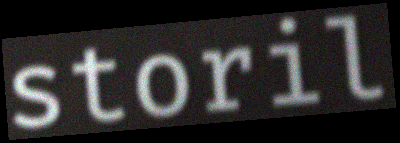
storil